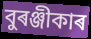
বুৰঞ্জীকাৰ